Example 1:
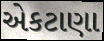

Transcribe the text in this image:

એકટાણા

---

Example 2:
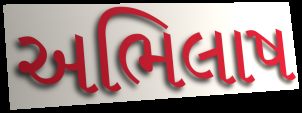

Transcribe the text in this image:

અભિલાષ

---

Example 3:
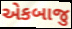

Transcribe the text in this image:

એકબાજુ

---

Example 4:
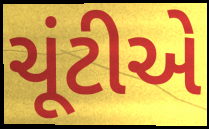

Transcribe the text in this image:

ચૂંટીએ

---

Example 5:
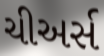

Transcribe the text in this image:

ચીઅર્સ